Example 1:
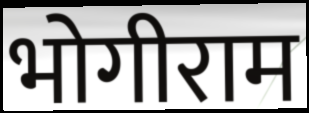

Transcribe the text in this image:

भोगीराम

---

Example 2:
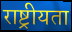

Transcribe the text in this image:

राष्ट्रीयता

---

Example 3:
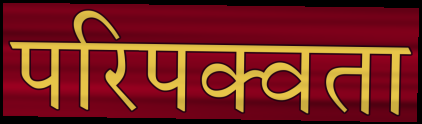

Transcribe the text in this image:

परिपक्‍वता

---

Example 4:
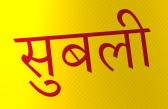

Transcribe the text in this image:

सुबली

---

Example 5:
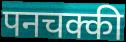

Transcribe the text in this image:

पनचक्की